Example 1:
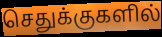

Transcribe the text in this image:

செதுக்குகளில்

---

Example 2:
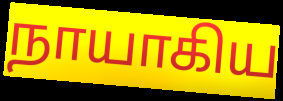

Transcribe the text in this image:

நாயாகிய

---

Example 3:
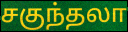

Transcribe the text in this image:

சகுந்தலா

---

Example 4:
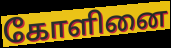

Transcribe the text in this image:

கோளினை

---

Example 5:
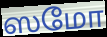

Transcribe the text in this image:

ஸமோ